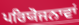
ਪਰਿਯੋਜਨਾਵਾਂ